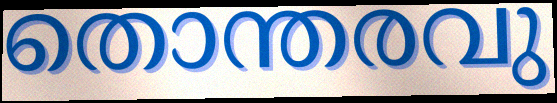
തൊന്തരവു